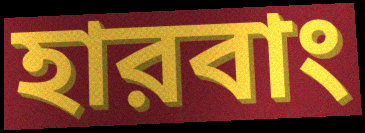
হারবাং